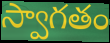
స్వాగతం